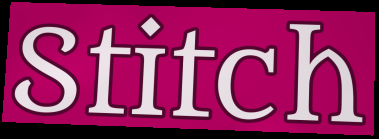
Stitch